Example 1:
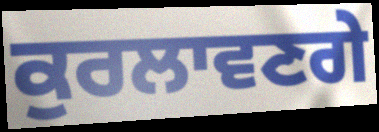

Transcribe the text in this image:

ਕੁਰਲਾਵਣਗੇ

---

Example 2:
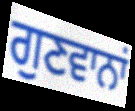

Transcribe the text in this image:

ਗੁਣਵਾਨਾਂ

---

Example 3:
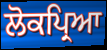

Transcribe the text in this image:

ਲੋਕਪ੍ਰਿਆ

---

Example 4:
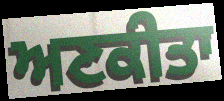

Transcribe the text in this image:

ਅਣਕੀਤਾ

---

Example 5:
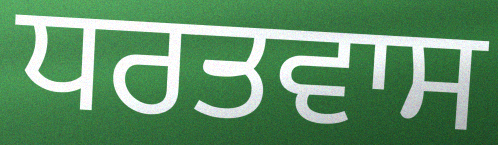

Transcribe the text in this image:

ਧਰਤਵਾਸ